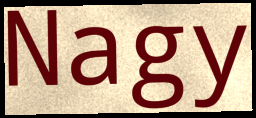
Nagy